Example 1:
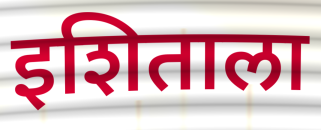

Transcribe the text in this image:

इशिताला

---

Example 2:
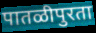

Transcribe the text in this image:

पातळीपुरता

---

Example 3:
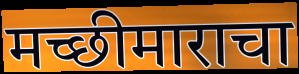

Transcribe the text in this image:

मच्छीमाराचा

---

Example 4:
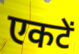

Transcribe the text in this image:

एकटें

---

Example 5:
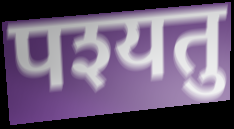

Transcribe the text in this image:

पश्यतु